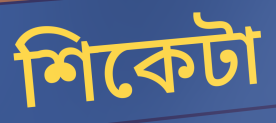
শিকেটা